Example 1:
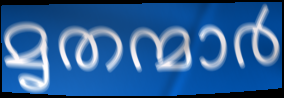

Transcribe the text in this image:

മൃതന്മാർ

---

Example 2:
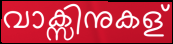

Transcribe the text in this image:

വാക്സിനുകള്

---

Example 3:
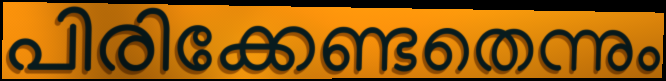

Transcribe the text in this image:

പിരിക്കേണ്ടതെന്നും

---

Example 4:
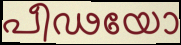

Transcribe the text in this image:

പീഢയോ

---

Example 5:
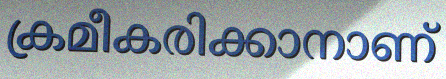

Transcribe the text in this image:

ക്രമീകരിക്കാനാണ്